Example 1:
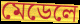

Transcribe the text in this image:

মেডেলে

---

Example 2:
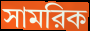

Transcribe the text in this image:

সামরিক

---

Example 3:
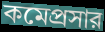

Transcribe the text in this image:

কমেপ্রসার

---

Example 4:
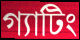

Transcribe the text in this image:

গ্যাটিং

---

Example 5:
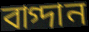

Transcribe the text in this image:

বাগ্দান